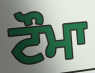
ਟੌਮਾ